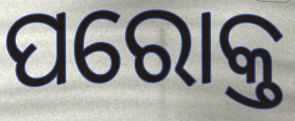
ପରୋକ୍ତ